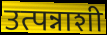
उत्पन्नाशी